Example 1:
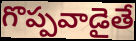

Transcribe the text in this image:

గొప్పవాడైతే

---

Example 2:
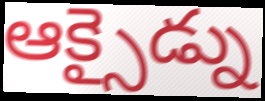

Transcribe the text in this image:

ఆక్సైడ్ను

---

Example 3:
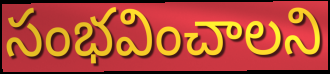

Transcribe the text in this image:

సంభవించాలని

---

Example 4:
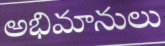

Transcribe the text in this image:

అభిమానులు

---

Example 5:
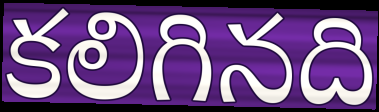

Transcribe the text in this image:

కలిగినది